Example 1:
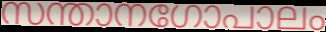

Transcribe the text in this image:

സന്താനഗോപാലം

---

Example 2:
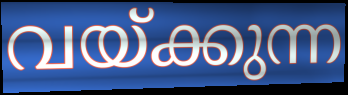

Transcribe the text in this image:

വയ്ക്കുന്ന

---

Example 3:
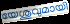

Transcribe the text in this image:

യേശുവുമായി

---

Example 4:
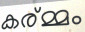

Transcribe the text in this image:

കര്മ്മം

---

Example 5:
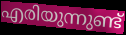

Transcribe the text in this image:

എരിയുന്നുണ്ട്